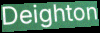
Deighton